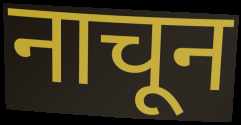
नाचून